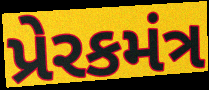
પ્રેરકમંત્ર